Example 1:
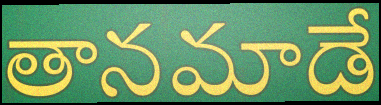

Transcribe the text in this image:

తానమాడే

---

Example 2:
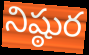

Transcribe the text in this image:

నిష్ఠుర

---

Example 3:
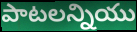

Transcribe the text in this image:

పాటలన్నియు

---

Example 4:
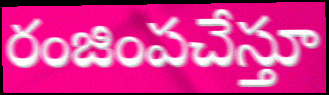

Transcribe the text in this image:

రంజింపచేస్తూ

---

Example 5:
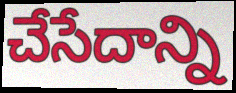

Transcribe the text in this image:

చేసేదాన్ని